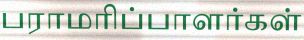
பராமரிப்பாளர்கள்